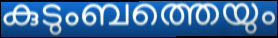
കുടുംബത്തെയും